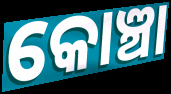
କୋଞ୍ଚା